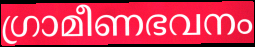
ഗ്രാമീണഭവനം